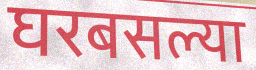
घरबसल्या